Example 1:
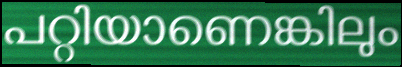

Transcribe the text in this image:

പറ്റിയാണെങ്കിലും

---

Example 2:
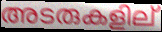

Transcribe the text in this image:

അടരുകളില്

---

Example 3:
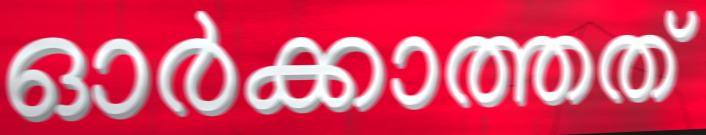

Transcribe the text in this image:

ഓർക്കാത്തത്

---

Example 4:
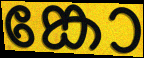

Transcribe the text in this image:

ങ്കോ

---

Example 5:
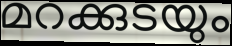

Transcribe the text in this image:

മറക്കുടയും